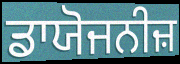
ਡਾਯੋਜਨੀਜ਼